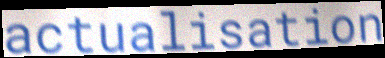
actualisation